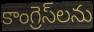
కాంగ్రెస్‌లను